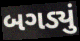
બગડ્યું